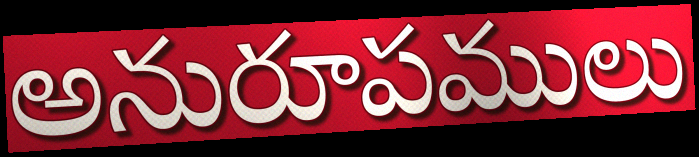
అనురూపములు